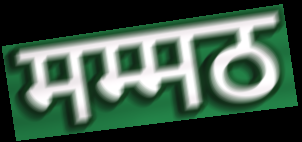
मम्मठ